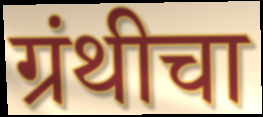
ग्रंथीचा